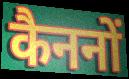
कैननों